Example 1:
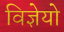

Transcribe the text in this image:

विज्ञेयो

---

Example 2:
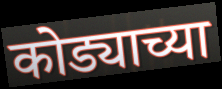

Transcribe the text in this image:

कोड्याच्या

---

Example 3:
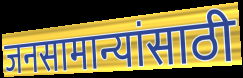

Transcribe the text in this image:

जनसामान्यांसाठी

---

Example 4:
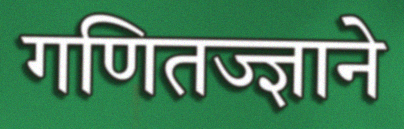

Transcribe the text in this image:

गणितज्ज्ञाने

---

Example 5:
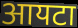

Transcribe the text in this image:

आयटा